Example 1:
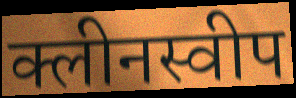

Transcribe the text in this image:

क्लीनस्वीप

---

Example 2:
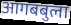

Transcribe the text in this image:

आगबबुला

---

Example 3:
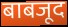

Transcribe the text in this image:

बाबजूद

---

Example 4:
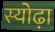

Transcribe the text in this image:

स्योढ़ा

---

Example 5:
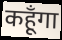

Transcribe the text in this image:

कहूँगा